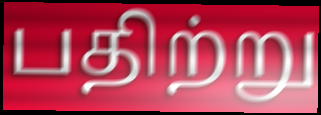
பதிற்று